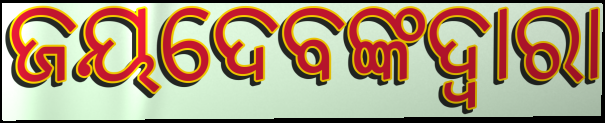
ଜୟଦେବଙ୍କଦ୍ୱାରା